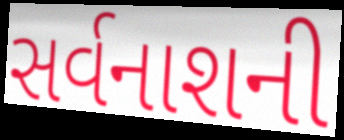
સર્વનાશની